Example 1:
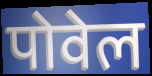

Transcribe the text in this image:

पोवेल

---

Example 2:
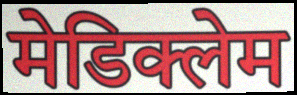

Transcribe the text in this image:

मेडिक्लेम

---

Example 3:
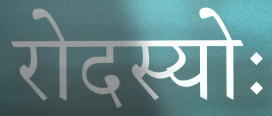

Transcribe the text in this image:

रोदस्योः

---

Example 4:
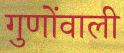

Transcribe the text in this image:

गुणोंवाली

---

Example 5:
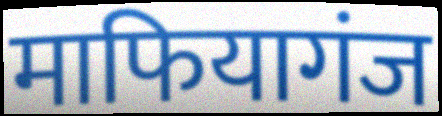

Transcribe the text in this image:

माफियागंज